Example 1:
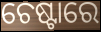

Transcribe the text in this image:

ଚେଷ୍ଟାରେ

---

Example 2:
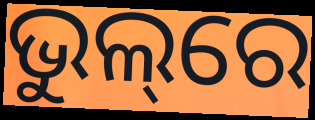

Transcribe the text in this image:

ଭୁଲ୍‌ରେ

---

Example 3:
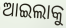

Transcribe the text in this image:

ଆଇଲାକୁ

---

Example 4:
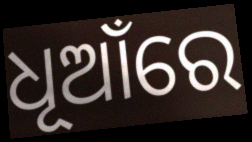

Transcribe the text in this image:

ଧୂଆଁରେ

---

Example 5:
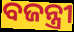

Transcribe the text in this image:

ବଜନ୍ତ୍ରୀ